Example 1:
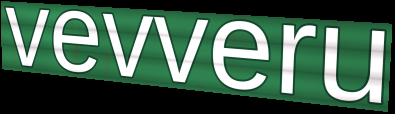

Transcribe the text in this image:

vevveru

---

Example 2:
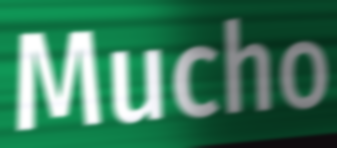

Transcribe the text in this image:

Mucho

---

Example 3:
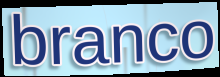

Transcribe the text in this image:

branco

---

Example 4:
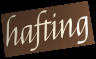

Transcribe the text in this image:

hafting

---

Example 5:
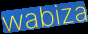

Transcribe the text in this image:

wabiza